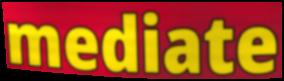
mediate